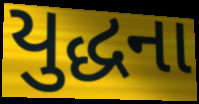
યુદ્ધના